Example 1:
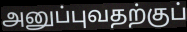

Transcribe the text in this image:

அனுப்புவதற்குப்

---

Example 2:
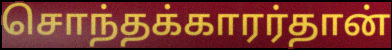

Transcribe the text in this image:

சொந்தக்காரர்தான்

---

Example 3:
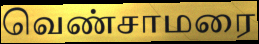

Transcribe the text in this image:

வெண்சாமரை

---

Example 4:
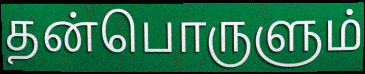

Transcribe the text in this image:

தன்பொருளும்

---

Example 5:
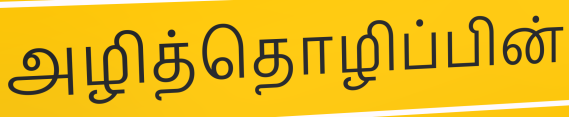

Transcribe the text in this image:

அழித்தொழிப்பின்